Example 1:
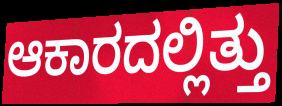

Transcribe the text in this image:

ಆಕಾರದಲ್ಲಿತ್ತು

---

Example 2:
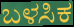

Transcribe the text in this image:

ಬಳಸಿಕ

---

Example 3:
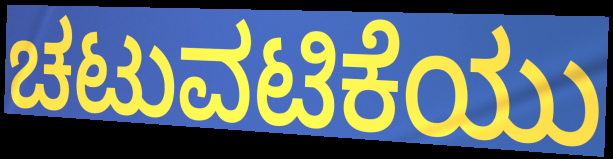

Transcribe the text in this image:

ಚಟುವಟಿಕೆಯು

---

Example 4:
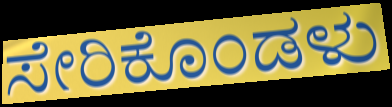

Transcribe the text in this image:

ಸೇರಿಕೊಂಡಳು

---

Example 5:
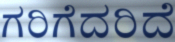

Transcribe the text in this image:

ಗರಿಗೆದರಿದೆ